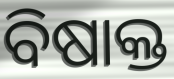
ବିଷାକ୍ତ